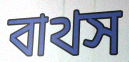
বাথস